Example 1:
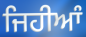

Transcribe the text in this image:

ਜਿਹੀਆੰ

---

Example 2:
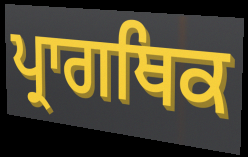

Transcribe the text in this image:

ਪ੍ਰਾਗਥਿਕ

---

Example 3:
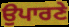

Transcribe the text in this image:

ਉਪਾਰਣੇ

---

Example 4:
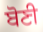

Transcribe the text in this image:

ਬੋਣੀ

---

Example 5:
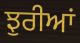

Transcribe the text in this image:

ਝੁਰੀਆਂ